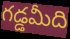
గడ్డమీది